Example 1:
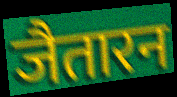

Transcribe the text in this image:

जैतारन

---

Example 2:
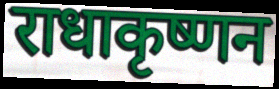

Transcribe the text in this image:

राधाकृष्णन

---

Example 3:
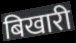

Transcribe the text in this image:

बिखारी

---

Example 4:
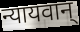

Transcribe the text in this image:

न्यायवान्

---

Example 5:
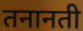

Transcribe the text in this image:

तनानती